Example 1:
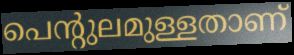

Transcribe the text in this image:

പെന്റുലമുള്ളതാണ്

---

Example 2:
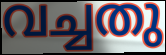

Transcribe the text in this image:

വച്ചതു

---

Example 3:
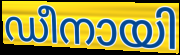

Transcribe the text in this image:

ഡീനായി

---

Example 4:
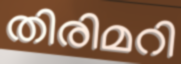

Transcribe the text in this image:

തിരിമറി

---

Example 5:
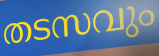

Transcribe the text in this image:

തടസവും